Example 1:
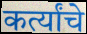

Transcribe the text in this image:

कर्त्यांचे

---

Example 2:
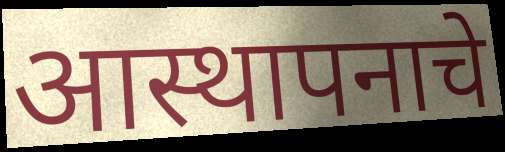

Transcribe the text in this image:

आस्थापनाचे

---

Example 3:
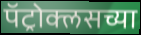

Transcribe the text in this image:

पॅट्रोक्लसच्या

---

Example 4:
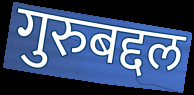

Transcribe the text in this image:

गुरुबद्दल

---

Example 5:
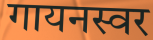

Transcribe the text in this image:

गायनस्वर